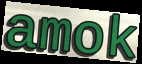
amok